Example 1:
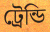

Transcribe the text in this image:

ট্রেন্ডি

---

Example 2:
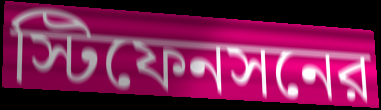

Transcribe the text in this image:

স্টিফেনসনের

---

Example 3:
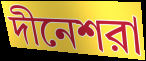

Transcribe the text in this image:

দীনেশরা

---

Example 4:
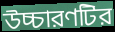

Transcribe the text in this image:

উচ্চারণটির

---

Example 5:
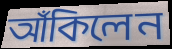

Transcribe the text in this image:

আঁকিলেন